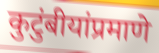
कुटुंबीयांप्रमाणे